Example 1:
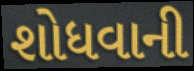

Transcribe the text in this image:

શોધવાની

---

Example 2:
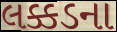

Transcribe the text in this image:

લક્કડના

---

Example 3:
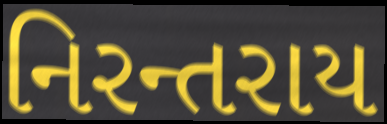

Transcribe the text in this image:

નિરન્તરાય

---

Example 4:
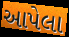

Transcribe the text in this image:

આપેલા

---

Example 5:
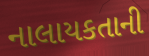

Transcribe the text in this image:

નાલાયકતાની